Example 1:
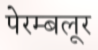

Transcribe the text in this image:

पेरम्बलूर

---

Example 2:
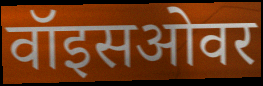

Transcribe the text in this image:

वॉइसओवर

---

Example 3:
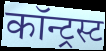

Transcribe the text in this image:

कॉन्ट्रस्ट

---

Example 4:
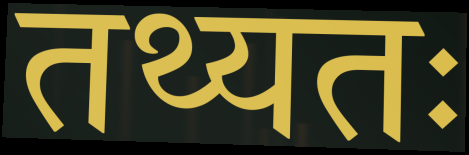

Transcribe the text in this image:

तथ्यतः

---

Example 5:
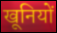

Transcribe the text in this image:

खूनियों